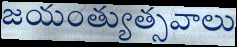
జయంత్యుత్సవాలు